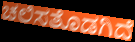
ಚಲಿಸತೊಡಗಿದೆ